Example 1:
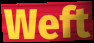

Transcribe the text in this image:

Weft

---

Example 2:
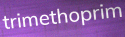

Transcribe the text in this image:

trimethoprim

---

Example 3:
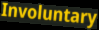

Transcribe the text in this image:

Involuntary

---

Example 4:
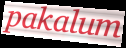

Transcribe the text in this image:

pakalum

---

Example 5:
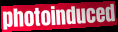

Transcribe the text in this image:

photoinduced